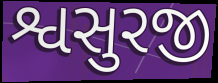
શ્વસુરજી